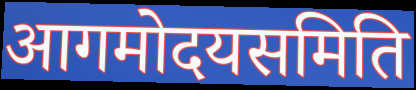
आगमोदयसमिति